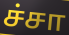
ச்சா